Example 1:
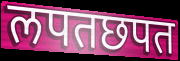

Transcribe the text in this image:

लपतछपत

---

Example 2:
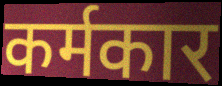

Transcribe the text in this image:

कर्मकार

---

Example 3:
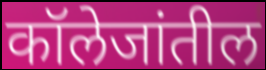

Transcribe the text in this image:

कॉलेजांतील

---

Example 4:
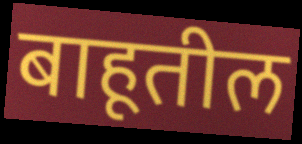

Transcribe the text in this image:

बाहूतील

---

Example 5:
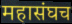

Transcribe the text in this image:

महासंघच